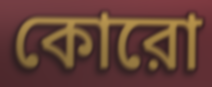
কোরো